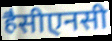
हैसीएनसी